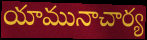
యామునాచార్య